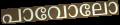
പാവോലോ